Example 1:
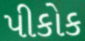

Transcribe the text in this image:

પીકોક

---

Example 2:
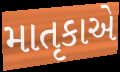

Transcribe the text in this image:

માતૃકાએ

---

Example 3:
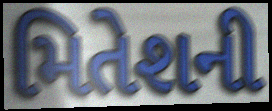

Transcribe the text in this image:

મિતેશની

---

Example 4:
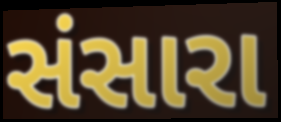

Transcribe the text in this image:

સંસારા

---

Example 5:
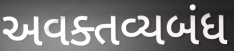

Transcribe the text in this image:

અવક્તવ્યબંધ